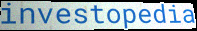
investopedia